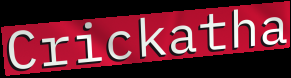
Crickatha